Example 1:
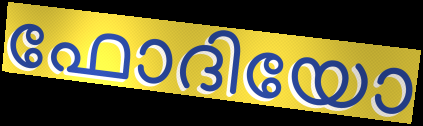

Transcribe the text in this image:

ഫോദിയോ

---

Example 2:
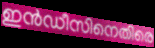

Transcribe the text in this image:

ഇൻഡീസിനെതിരെ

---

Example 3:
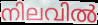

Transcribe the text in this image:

നിലവിൽ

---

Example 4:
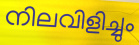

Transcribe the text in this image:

നിലവിളിച്ചും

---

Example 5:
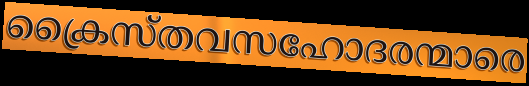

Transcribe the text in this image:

ക്രൈസ്തവസഹോദരന്മാരെ